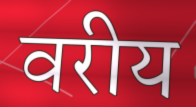
वरीय